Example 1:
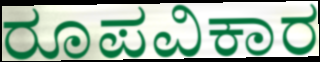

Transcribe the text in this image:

ರೂಪವಿಕಾರ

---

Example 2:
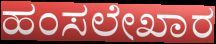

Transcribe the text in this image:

ಹಂಸಲೇಖಾರ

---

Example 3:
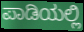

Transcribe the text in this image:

ಪಾಡಿಯಲ್ಲಿ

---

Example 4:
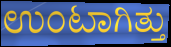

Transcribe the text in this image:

ಉಂಟಾಗಿತ್ತು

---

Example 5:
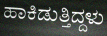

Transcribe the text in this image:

ಹಾಕಿಡುತ್ತಿದ್ದಳು